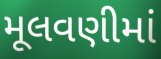
મૂલવણીમાં